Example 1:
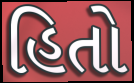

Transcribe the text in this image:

હિતો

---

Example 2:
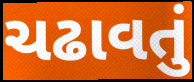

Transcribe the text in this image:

ચઢાવતું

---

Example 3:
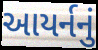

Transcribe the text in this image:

આયર્નનું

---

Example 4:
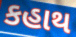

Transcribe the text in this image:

કહાથ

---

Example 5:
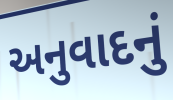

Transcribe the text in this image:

અનુવાદનું